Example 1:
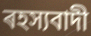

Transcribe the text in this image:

ৰহস্যবাদী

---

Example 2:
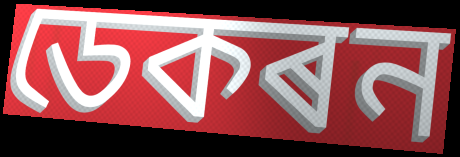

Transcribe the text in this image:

ডেকৰন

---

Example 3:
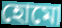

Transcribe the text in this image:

হোমো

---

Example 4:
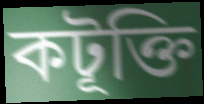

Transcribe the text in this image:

কটূক্তি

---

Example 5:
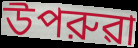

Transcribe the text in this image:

উপৰুৱা